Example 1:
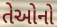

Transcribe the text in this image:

તેઓનો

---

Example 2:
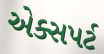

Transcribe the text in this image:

એક્સપર્ટ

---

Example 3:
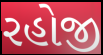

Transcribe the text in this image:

રહોજી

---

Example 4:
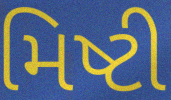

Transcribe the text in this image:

મિષ્ટી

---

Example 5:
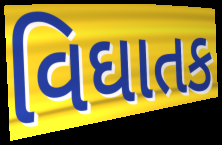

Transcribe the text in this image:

વિઘાતક